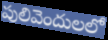
పులివెందులలో